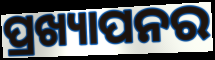
ପ୍ରଖ୍ୟାପନର